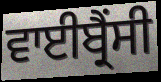
ਵਾਈਬ੍ਰੈਂਸੀ